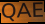
QAE